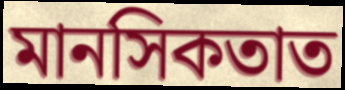
মানসিকতাত